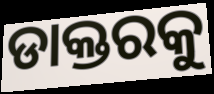
ଡାକ୍ତରକୁ